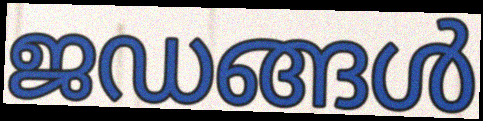
ജഡങ്ങൾ